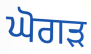
ਘੋਗੜ